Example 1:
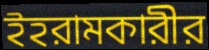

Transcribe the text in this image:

ইহরামকারীর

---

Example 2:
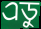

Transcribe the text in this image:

এডু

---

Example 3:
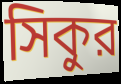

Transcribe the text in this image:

সিকুর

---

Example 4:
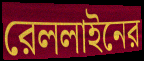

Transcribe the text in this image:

রেললাইনের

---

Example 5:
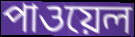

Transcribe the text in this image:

পাওয়েল